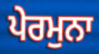
ਪੇਰਮੁਨਾ